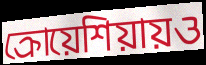
ক্রোয়েশিয়ায়ও